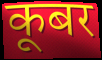
कूबर